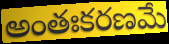
అంతఃకరణమే